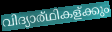
വിദ്യാര്ഥികള്ക്കും